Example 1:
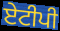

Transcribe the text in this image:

ਏਟੀਪੀ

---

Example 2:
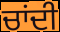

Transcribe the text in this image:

ਚਾਂਦੀ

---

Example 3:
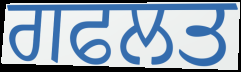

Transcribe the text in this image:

ਗਫਲਤ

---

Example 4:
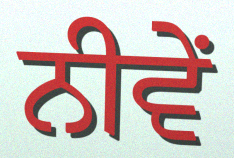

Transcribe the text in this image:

ਨੀਵੇਂ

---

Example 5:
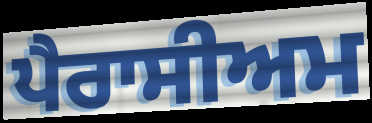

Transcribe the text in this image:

ਪੈਰਾਸੀਅਮ